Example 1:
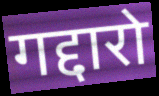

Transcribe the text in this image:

गद्दारो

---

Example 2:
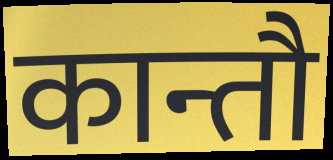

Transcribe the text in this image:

कान्तौ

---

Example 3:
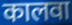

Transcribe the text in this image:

कालवा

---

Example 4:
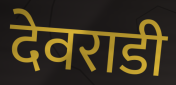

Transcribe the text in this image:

देवराडी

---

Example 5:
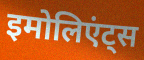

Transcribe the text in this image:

इमोलिएंट्स